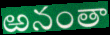
ఱనంతా